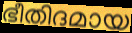
ഭീതിദമായ